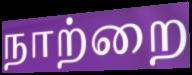
நாற்றை